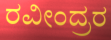
ರವೀಂದ್ರರ